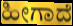
ಹೀಗಾದೆ